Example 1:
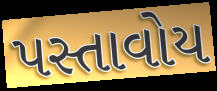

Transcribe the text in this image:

પસ્તાવોય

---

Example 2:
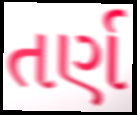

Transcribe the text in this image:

તર્ણ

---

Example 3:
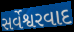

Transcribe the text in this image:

સર્વેશ્વરવાદ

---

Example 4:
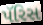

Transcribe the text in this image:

પૅરિસ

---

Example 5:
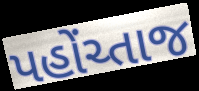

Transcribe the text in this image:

પહોંચ્તાજ